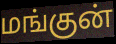
மங்குன்